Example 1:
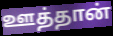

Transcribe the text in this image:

ஊத்தான்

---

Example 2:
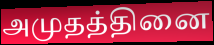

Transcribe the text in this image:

அமுதத்தினை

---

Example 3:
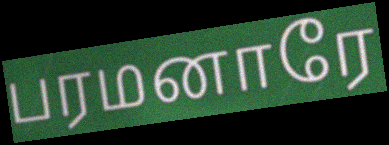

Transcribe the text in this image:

பரமனாரே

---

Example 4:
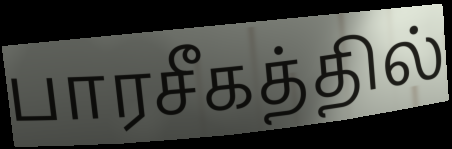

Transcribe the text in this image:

பாரசீகத்தில்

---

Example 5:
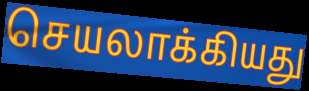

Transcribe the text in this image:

செயலாக்கியது